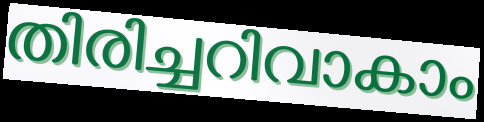
തിരിച്ചറിവാകാം